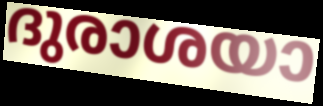
ദുരാശയാ